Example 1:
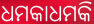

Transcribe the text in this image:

ଧମକାଧମକି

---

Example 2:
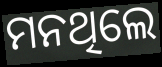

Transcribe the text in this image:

ମନଥିଲେ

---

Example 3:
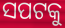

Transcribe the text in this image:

ସପଟକୁ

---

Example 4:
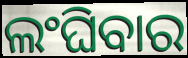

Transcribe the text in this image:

ଲଂଘିବାର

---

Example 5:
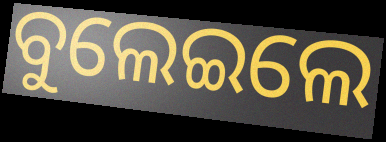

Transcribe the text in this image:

ବୁଲେଇଲେ